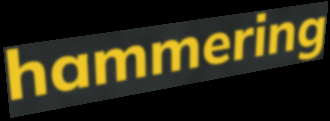
hammering